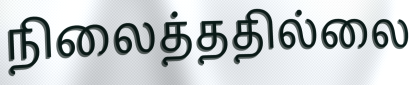
நிலைத்ததில்லை